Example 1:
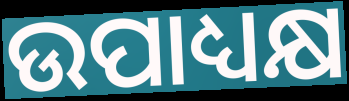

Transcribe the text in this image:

ଉପାଧ୍ୟକ୍ଷ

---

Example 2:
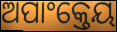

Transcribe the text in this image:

ଅପାଂକ୍ତେୟ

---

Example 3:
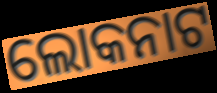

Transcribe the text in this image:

ଲୋକନାଟ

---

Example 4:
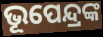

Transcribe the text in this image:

ଭୂପେନ୍ଦ୍ରଙ୍କ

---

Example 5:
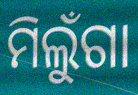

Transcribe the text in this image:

ମିଲୁଁଗା